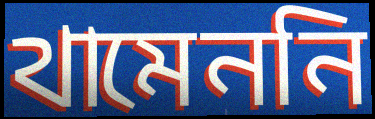
থামেননি